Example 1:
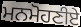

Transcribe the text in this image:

ਮਨਮੋਹਣੀਏ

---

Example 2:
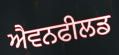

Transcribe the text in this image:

ਐਵਨਫੀਲਡ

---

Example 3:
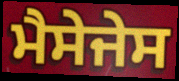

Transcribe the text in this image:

ਮੈਸੇਜੇਸ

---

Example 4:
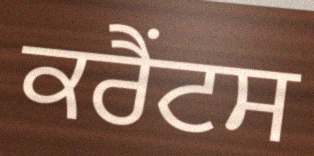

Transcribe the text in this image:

ਕਰੈਂਟਸ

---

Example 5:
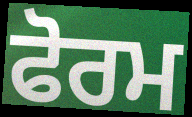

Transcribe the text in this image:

ਫੋਰਮ